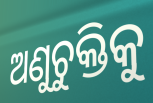
ଅଣୁଚୁକ୍ତିକୁ